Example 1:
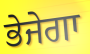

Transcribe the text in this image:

ਭੇਜੇਗਾ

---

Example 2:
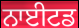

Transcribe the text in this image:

ਨਾਈਟਡ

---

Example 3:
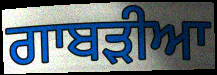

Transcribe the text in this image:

ਗਾਬੜੀਆ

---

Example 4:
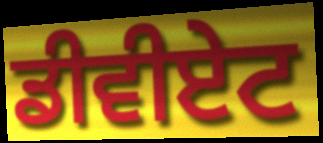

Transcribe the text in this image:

ਡੀਵੀਏਟ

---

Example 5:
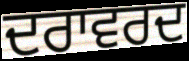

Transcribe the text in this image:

ਦਰਾਵਰਦ